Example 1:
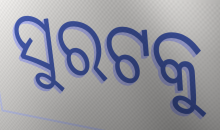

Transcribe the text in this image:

ସୁରଟକୁ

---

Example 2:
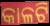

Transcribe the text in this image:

କାଳଟି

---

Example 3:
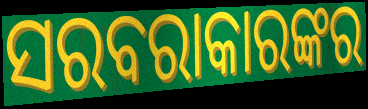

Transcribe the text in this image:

ସରବରାକାରଙ୍କର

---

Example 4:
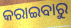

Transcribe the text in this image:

କରାଇବାରୁ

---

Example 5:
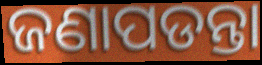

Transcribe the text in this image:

ଜଣାପଡନ୍ତା